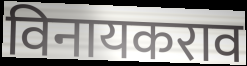
विनायकराव